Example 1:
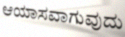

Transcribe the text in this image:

ಆಯಾಸವಾಗುವುದು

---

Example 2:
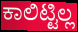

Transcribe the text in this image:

ಕಾಲಿಟ್ಟಿಲ್ಲ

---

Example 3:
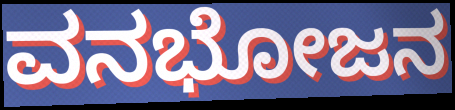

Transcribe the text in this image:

ವನಭೋಜನ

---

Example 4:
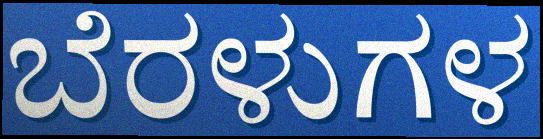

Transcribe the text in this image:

ಬೆರಳುಗಳ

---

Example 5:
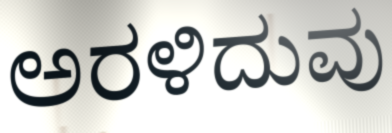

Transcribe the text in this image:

ಅರಳಿದುವು